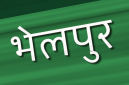
भेलपुर